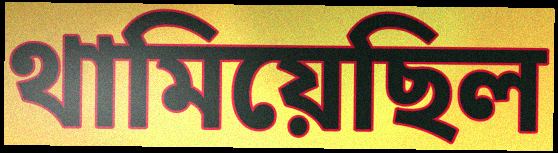
থামিয়েছিল